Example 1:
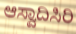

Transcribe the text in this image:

ಆಸ್ವಾದಿಸಿರಿ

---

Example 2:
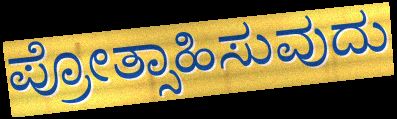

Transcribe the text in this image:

ಪ್ರೋತ್ಸಾಹಿಸುವುದು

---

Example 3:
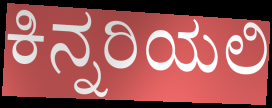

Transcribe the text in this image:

ಕಿನ್ನರಿಯಲಿ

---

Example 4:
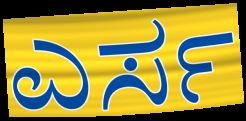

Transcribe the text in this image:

ಎರ್ಸ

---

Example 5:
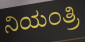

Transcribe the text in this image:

ನಿಯಂತ್ರಿ